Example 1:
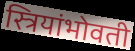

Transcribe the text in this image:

स्त्रियांभोवती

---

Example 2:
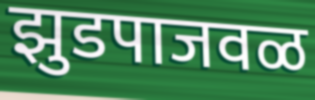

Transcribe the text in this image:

झुडपाजवळ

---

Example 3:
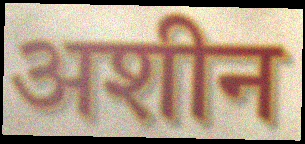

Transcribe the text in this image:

अशीन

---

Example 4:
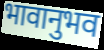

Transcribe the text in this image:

भावानुभव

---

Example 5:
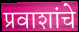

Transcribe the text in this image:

प्रवाशांचे